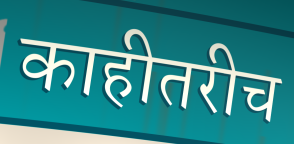
काहीतरीच